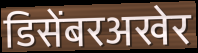
डिसेंबरअखेर